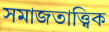
সমাজতাত্ত্বিক